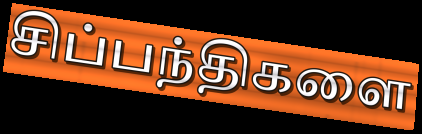
சிப்பந்திகளை